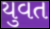
યુવત